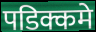
पडिक्कमे